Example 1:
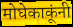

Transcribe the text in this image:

मोघेकाकूंनी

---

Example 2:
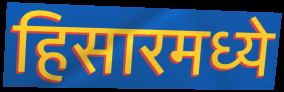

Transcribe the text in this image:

हिसारमध्ये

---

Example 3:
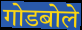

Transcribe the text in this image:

गोडबोले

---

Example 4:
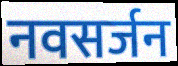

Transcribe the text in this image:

नवसर्जन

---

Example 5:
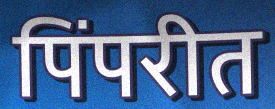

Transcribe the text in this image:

पिंपरीत